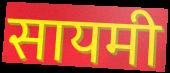
सायमी